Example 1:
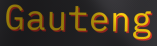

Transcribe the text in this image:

Gauteng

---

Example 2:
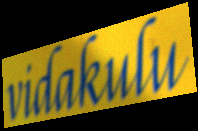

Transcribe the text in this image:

vidakulu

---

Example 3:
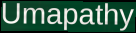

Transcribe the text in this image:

Umapathy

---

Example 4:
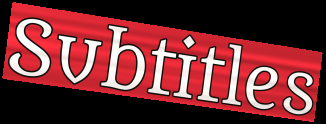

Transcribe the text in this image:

Subtitles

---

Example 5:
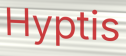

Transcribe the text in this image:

Hyptis